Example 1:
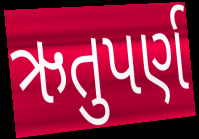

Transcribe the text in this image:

ઋતુપર્ણ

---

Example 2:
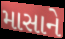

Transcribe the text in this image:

માસાને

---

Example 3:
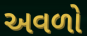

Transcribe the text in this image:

અવળો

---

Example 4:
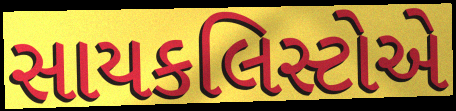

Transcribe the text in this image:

સાયકલિસ્ટોએ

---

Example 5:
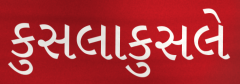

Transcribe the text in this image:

કુસલાકુસલે